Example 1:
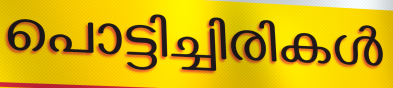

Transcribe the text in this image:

പൊട്ടിച്ചിരികൾ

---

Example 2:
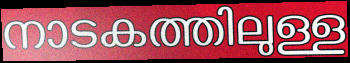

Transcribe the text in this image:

നാടകത്തിലുള്ള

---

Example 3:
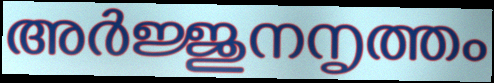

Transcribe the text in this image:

അർജ്ജുനനൃത്തം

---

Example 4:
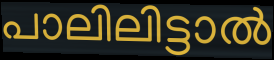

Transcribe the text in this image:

പാലിലിട്ടാൽ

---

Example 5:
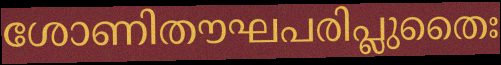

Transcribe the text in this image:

ശോണിതൗഘപരിപ്ലുതൈഃ